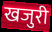
खजुरी